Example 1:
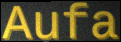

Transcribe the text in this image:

Aufa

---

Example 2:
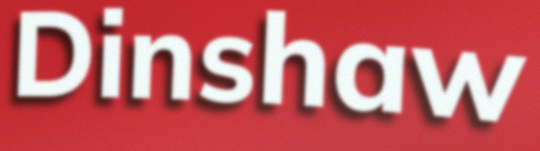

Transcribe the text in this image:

Dinshaw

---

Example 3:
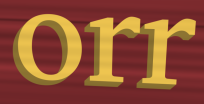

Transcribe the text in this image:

orr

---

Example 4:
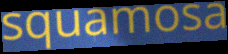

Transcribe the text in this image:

squamosa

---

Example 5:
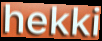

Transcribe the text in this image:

hekki